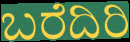
ಬರೆದಿರಿ